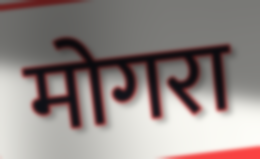
मोगरा